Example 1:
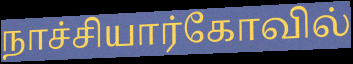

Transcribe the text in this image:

நாச்சியார்கோவில்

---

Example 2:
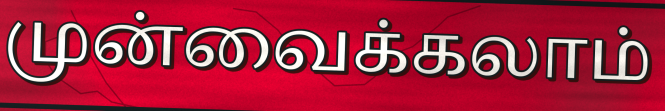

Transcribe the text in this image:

முன்வைக்கலாம்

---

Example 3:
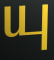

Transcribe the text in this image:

யு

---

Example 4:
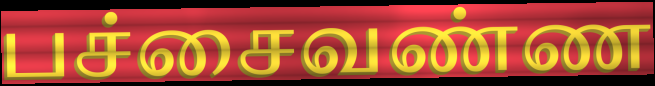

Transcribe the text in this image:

பச்சைவண்ண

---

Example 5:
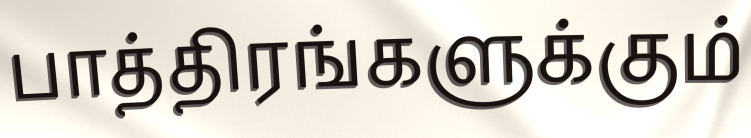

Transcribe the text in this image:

பாத்திரங்களுக்கும்